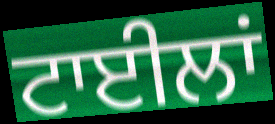
ਟਾਈਲਾਂ